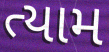
ત્યામ